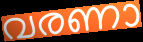
വരണാ